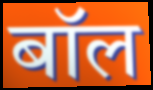
बॉल